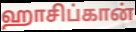
ஹாசிப்கான்